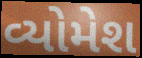
વ્યોમેશ